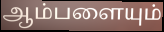
ஆம்பளையும்